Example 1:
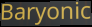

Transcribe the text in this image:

Baryonic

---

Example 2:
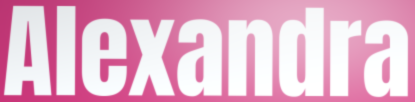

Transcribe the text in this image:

Alexandra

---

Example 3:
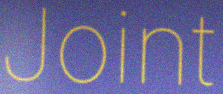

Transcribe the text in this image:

Joint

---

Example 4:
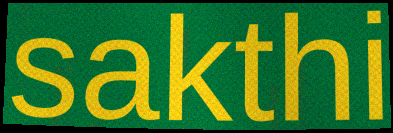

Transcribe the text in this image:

sakthi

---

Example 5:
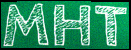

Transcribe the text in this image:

MHT